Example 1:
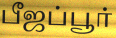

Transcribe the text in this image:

பீஜப்பூர்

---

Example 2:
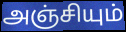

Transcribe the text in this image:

அஞ்சியும்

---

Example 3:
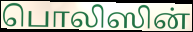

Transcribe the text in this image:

பொலிஸின்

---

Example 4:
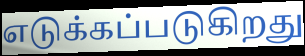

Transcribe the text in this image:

எடுக்கப்படுகிறது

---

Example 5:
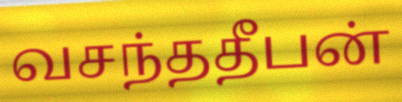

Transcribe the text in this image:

வசந்ததீபன்